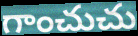
గాంచుచు